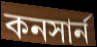
কনসার্ন